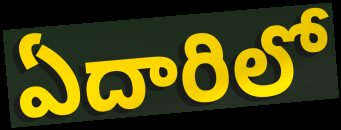
ఏదారిలో